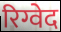
रिग्वेद